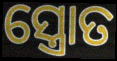
ସ୍ତ୍ରୋତ